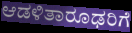
ಆಡಳಿತಾರೂಢರಿಗೆ